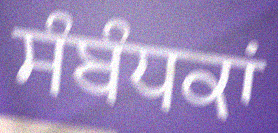
ਸੰਬੰਧਕਾਂ